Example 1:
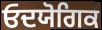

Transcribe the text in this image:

ਓਦਯੋਗਿਕ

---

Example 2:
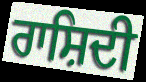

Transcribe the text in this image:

ਰਾਸ਼ਿਦੀ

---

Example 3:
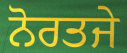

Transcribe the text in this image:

ਨੋਰਤਜੇ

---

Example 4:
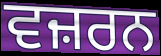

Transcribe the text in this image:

ਵਜ਼ਰਨ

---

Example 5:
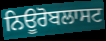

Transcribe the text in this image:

ਨਿਊਰੋਬਲਾਸਟ